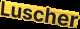
Luscher